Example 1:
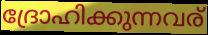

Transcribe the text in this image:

ദ്രോഹിക്കുന്നവര്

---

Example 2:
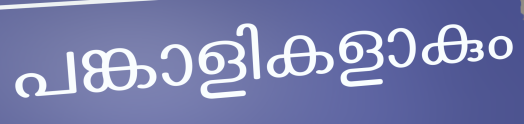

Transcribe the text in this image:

പങ്കാളികളാകും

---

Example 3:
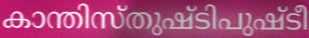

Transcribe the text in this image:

കാന്തിസ്തുഷ്ടിപുഷ്ടീ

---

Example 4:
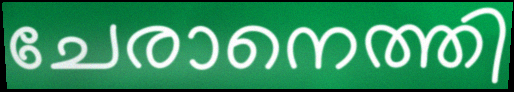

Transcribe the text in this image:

ചേരാനെത്തി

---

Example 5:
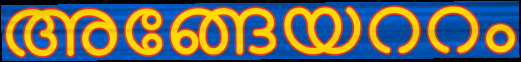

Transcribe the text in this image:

അങ്ങേയററം